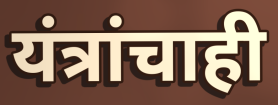
यंत्रांचाही